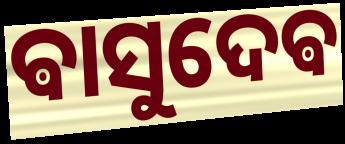
ଵାସୁଦେଵ